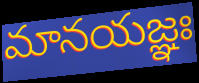
మానయజ్ఞః